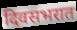
दिवसभरात